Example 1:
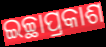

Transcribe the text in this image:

ଇଚ୍ଛାପ୍ରକାଶ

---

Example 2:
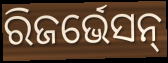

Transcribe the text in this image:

ରିଜର୍ଭେସନ୍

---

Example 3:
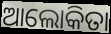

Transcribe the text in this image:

ଆଲୋକିତା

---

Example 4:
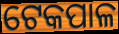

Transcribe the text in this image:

ଟେକପାଳ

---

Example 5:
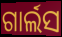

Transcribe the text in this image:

ଗାର୍ଲସ